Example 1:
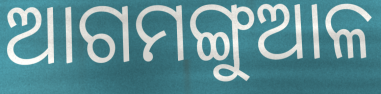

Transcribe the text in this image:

ଆଗମଙ୍ଗୁଆଳ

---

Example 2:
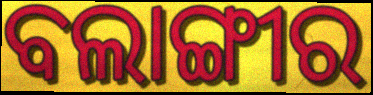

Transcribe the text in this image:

ବଲାଙ୍ଗୀର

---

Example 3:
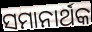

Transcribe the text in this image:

ସମାନାର୍ଥକ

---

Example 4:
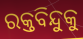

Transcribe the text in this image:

ରକ୍ତବିନ୍ଦୁକୁ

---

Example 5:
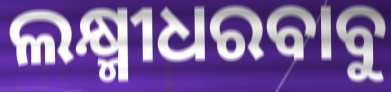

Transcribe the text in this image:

ଲକ୍ଷ୍ମୀଧରବାବୁ